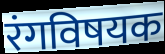
रंगविषयक